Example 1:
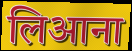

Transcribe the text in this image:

लिआना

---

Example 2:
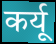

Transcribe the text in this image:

कर्यू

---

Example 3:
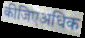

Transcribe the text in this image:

कीजिएअधिक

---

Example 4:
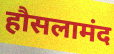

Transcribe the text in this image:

हौसलामंद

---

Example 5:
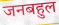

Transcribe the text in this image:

जनबहुल